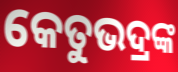
କେତୁଭଦ୍ରଙ୍କ